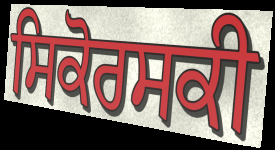
ਸਿਕੋਰਸਕੀ